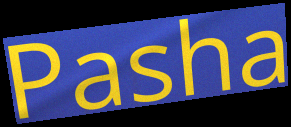
Pasha